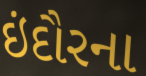
ઇંદૌરના